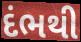
દંભથી